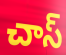
చాస్